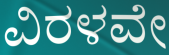
ವಿರಳವೇ